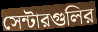
সেন্টারগুলির